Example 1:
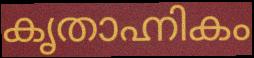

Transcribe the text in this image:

കൃതാഹ്നികം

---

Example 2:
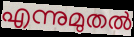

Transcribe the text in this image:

എന്നുമുതൽ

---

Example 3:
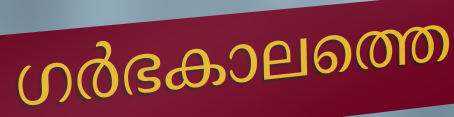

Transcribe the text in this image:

ഗർഭകാലത്തെ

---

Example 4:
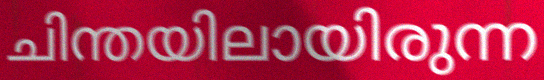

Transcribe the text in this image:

ചിന്തയിലായിരുന്ന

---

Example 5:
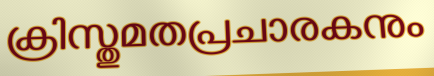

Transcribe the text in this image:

ക്രിസ്തുമതപ്രചാരകനും